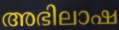
അഭിലാഷ